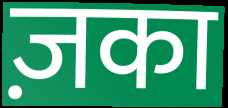
ज़का